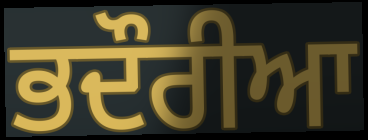
ਭਦੌਰੀਆ